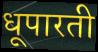
धूपारती